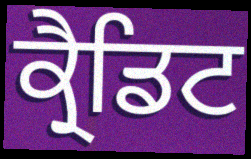
ਕ੍ਰੈਡਿਟ